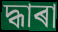
দ্ধাৰা